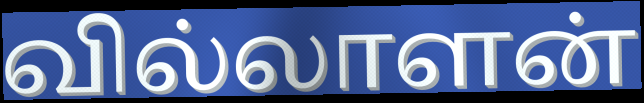
வில்லாளன்